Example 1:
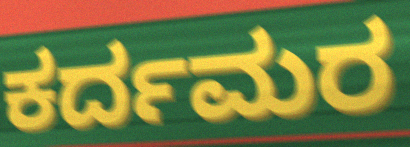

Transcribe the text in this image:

ಕರ್ದಮರ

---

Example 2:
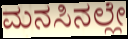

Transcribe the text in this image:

ಮನಸಿನಲ್ಲೇ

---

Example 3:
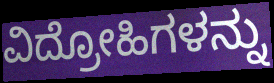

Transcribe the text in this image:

ವಿದ್ರೋಹಿಗಳನ್ನು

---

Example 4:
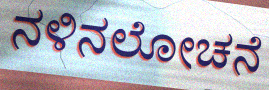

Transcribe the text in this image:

ನಳಿನಲೋಚನೆ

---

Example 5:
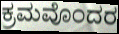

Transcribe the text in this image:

ಕ್ರಮವೊಂದರ